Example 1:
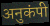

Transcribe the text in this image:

अनुकंपी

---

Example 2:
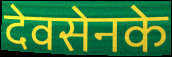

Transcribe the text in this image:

देवसेनके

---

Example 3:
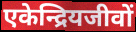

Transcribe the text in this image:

एकेन्द्रियजीवों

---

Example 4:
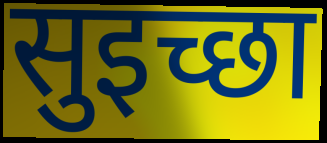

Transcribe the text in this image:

सुइच्छा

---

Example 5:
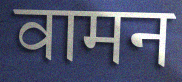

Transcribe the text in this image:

वामन